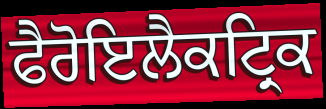
ਫੈਰੋਇਲੈਕਟ੍ਰਿਕ